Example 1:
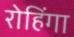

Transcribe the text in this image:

रोहिंगा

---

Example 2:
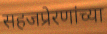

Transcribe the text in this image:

सहजप्रेरणांच्या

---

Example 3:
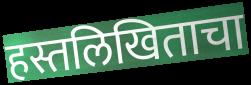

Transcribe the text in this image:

हस्तलिखिताचा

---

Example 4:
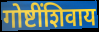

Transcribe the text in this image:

गोष्टींशिवाय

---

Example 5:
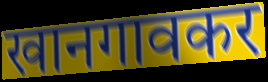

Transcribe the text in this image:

खानगावकर